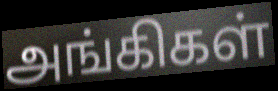
அங்கிகள்